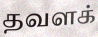
தவளக்